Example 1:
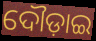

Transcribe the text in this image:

ଦୌଡ଼ାଇ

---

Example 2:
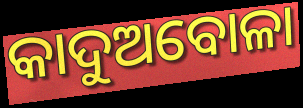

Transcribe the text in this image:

କାଦୁଅବୋଳା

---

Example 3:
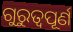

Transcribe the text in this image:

ଗୁରୁତ୍ୱପୂର୍ଣ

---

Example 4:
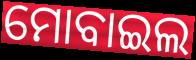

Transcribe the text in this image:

ମୋବାଇଲ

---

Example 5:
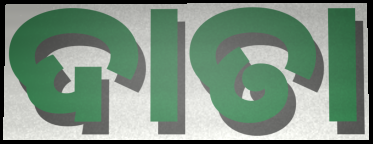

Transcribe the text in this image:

ଦାତା